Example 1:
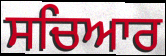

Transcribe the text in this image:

ਸਚਿਆਰ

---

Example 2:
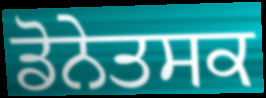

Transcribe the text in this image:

ਡੋਨੇਤਸਕ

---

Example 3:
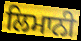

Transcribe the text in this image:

ਲਿਮਾਨੀ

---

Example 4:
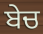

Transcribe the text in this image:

ਬੇਚ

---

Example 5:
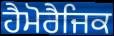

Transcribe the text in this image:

ਹੈਮੋਰੈਜਿਕ